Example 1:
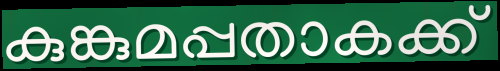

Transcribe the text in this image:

കുങ്കുമപ്പതാകക്ക്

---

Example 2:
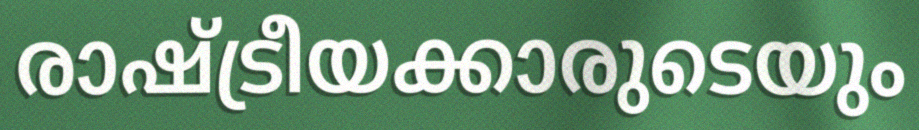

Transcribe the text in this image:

രാഷ്ട്രീയക്കാരുടെയും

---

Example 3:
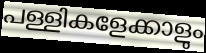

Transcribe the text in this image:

പള്ളികളേക്കാളും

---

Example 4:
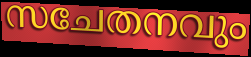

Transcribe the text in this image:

സചേതനവും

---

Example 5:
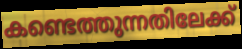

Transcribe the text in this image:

കണ്ടെത്തുന്നതിലേക്ക്